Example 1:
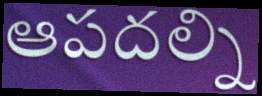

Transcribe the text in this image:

ఆపదల్ని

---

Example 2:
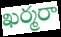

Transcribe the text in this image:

ఖర్మరా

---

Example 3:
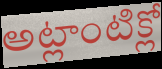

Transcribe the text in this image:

అట్లాంటిక్లో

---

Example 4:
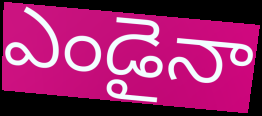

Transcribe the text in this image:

ఎండైనా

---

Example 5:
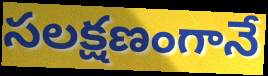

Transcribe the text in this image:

సలక్షణంగానే